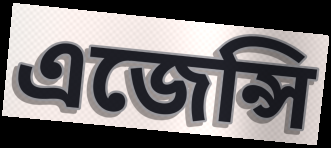
এজেন্সি